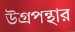
উগ্রপন্থার